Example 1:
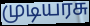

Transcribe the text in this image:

முடியரசு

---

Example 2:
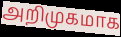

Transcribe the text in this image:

அறிமுகமாக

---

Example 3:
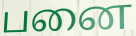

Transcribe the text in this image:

பனை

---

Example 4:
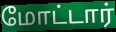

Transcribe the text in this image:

மோட்டார்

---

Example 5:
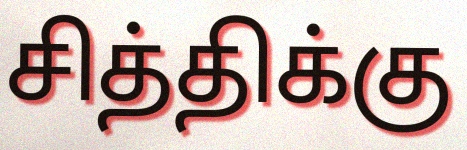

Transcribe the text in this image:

சித்திக்கு